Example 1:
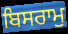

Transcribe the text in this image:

ਬਿਸਰਾਮੁ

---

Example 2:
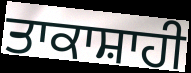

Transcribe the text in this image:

ਤਾਕਾਸ਼ਾਹੀ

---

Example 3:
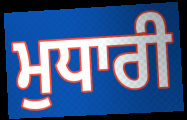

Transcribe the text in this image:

ਮੁਧਾਰੀ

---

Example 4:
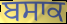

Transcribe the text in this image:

ਬਸਾਕ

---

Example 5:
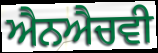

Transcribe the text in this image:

ਐਨਐਚਵੀ